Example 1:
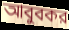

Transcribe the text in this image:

আবুবকর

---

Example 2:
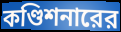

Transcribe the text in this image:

কণ্ডিশনারের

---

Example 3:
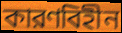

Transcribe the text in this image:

কারণবিহীন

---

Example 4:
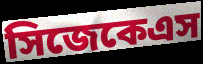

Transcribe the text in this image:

সিজেকেএস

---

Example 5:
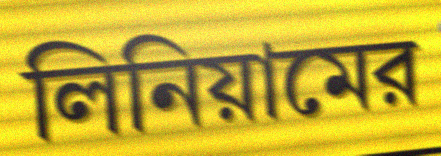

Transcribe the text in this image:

লিনিয়ামের